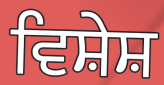
ਵਿਸ਼ੇਸ਼